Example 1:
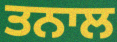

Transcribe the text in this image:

ਤਨਾਲ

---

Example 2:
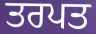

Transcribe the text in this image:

ਤਰਪਤ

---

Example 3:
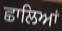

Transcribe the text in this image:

ਛਾਲਿਆਂ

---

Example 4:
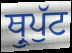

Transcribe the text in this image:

ਥ੍ਰੁਪੁੱਟ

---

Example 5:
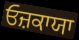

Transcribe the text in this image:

ਓਜ਼ਕਾਯਾ